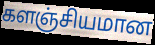
களஞ்சியமான